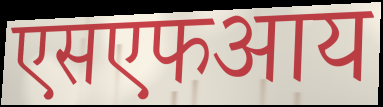
एसएफआय